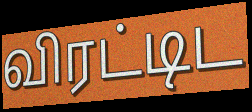
விரட்டிட